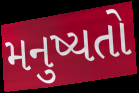
મનુષ્યતો